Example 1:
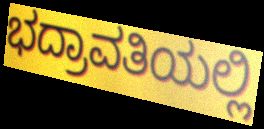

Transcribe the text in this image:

ಭದ್ರಾವತಿಯಲ್ಲಿ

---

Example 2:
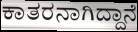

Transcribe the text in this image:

ಕಾತರನಾಗಿದ್ದಾನೆ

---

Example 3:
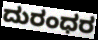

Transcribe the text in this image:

ದುರಂಧರ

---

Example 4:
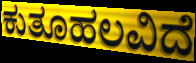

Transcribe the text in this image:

ಕುತೂಹಲವಿದೆ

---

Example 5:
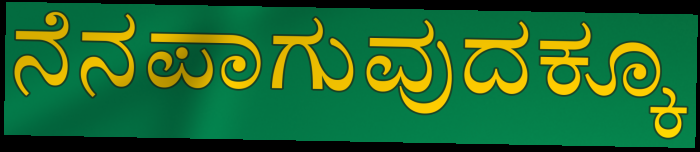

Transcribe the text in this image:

ನೆನಪಾಗುವುದಕ್ಕೂ